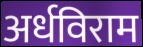
अर्धविराम